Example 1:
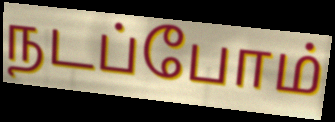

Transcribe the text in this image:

நடப்போம்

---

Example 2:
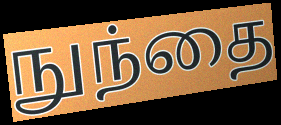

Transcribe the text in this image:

நுந்தை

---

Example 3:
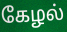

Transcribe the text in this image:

கேழல்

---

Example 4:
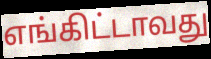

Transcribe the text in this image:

எங்கிட்டாவது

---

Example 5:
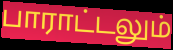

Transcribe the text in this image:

பாராட்டலும்